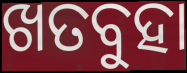
ଖତବୁହା